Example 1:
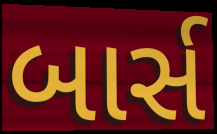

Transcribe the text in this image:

બાર્સ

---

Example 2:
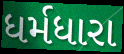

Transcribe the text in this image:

ધર્મધારા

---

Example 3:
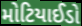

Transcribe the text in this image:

મોટિયાઈડો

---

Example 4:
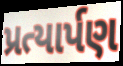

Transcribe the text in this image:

પ્રત્યાર્પણ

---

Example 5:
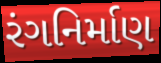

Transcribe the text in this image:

રંગનિર્માણ